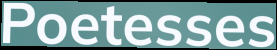
Poetesses